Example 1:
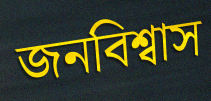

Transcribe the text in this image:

জনবিশ্বাস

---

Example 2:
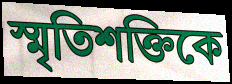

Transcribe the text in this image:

স্মৃতিশক্তিকে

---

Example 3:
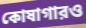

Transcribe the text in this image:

কোষাগারও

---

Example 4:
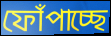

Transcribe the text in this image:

ফোঁপাচ্ছে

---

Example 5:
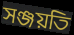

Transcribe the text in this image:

সঞ্জয়তি